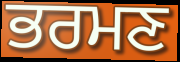
ਭਰਮਣ